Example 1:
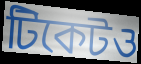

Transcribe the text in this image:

টিকেটও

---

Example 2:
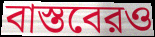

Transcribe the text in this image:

বাস্তবেরও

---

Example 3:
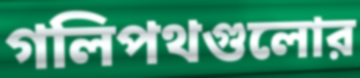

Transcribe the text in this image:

গলিপথগুলোর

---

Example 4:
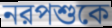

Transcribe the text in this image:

নরপশুকে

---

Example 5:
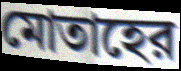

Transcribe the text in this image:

মোতাহের